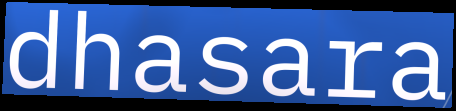
dhasara